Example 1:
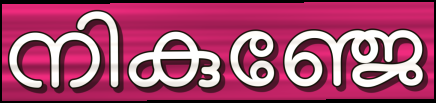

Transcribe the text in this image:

നികുഞ്ജേ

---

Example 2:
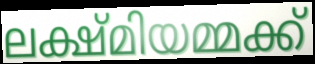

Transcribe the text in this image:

ലക്ഷ്മിയമ്മക്ക്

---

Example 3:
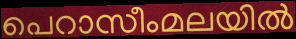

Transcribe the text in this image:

പെറാസീംമലയിൽ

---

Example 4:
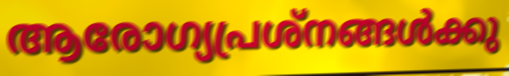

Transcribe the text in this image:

ആരോഗ്യപ്രശ്നങ്ങൾക്കു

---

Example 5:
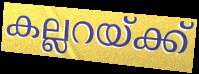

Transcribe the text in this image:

കല്ലറയ്ക്ക്